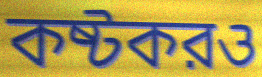
কষ্টকরও